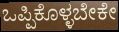
ಒಪ್ಪಿಕೊಳ್ಳಬೇಕೇ